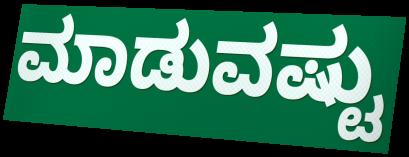
ಮಾಡುವಷ್ಟು